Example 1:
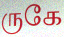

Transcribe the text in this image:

ருகே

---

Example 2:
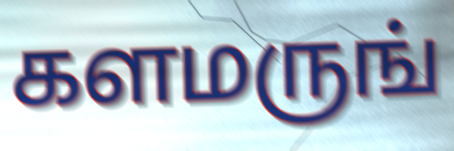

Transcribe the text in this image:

களமருங்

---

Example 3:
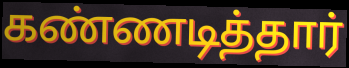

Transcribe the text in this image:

கண்ணடித்தார்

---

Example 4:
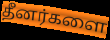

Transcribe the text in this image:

தீனர்களை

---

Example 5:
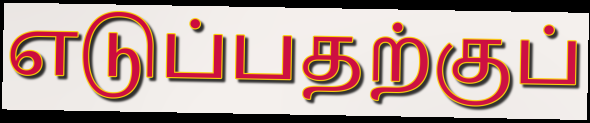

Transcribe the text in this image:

எடுப்பதற்குப்